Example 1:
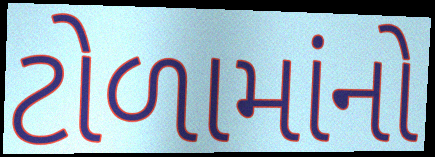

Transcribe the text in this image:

ટોળામાંનો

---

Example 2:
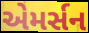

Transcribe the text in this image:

એમર્સન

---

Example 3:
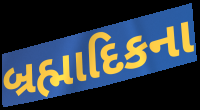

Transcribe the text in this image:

બ્રહ્માદિકના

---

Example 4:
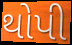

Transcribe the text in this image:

થોપી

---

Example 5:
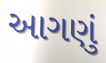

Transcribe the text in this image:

આગણું